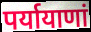
पर्यायाणां